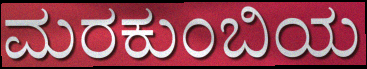
ಮರಕುಂಬಿಯ